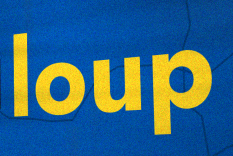
loup